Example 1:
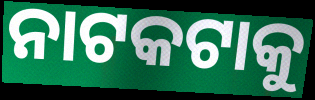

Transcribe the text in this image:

ନାଟକଟାକୁ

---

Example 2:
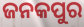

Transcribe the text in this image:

ଜନକପୁର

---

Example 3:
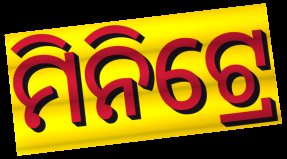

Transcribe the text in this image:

ମିନିଟ୍ରେ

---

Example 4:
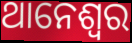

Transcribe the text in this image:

ଥାନେଶ୍ୱର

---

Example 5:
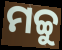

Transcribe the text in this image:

ମଚ୍ଚୁ